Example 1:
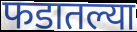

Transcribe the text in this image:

फडातल्या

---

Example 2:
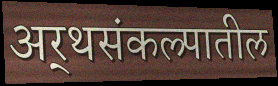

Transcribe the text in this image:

अर्थसंकल्पातील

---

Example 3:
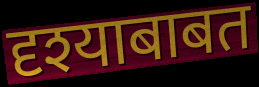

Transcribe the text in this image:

दृश्याबाबत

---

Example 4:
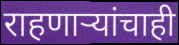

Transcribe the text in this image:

राहणाऱ्यांचाही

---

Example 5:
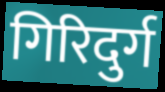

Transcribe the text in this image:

गिरिदुर्ग